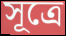
সূত্ৰে